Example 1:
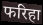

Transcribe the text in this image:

फरिहा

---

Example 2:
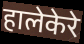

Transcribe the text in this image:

हालेकेरे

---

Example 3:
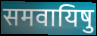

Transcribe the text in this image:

समवायिषु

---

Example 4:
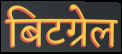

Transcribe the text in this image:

बिटग्रेल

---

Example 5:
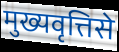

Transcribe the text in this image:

मुख्यवृत्तिसे